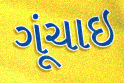
ગૂંચાઇ